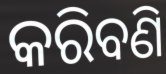
କରିବଣି